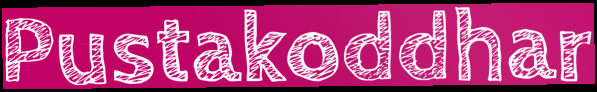
Pustakoddhar